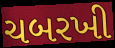
ચબરખી